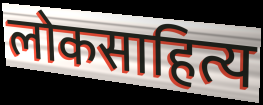
लोकसाहित्य